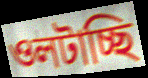
ওলটাচ্ছি